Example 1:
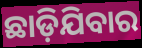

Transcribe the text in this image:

ଛାଡ଼ିଯିବାର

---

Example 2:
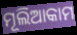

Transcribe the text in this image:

ମୂଲିଆକାମ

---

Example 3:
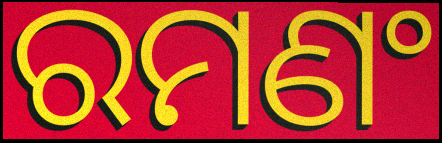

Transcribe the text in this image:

ରମଣଂ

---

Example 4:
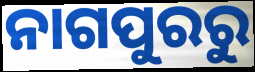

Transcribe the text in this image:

ନାଗପୁରରୁ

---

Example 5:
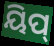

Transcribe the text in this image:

ୟିପ୍